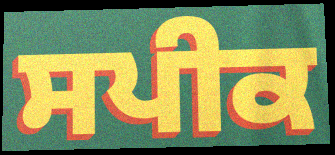
ਸਪੀਕ